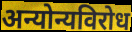
अन्योन्यविरोध